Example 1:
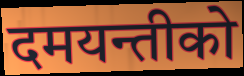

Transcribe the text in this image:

दमयन्तीको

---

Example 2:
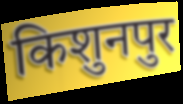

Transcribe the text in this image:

किशुनपुर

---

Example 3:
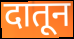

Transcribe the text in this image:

दातून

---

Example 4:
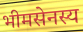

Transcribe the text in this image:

भीमसेनस्य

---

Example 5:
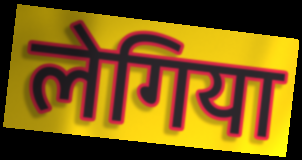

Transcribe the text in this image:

लेगिया